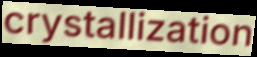
crystallization